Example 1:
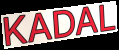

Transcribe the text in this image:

KADAL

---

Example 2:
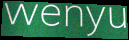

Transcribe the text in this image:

wenyu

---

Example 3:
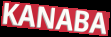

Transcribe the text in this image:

KANABA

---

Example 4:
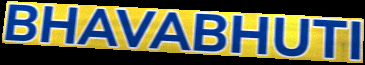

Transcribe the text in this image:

BHAVABHUTI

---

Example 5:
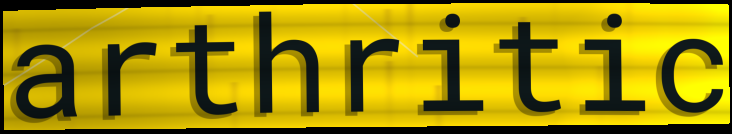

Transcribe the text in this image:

arthritic